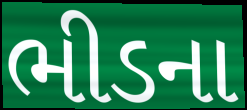
ભીડના